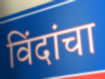
विंदांचा